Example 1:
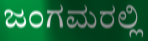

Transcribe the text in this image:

ಜಂಗಮರಲ್ಲಿ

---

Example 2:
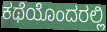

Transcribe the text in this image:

ಕಥೆಯೊಂದರಲ್ಲಿ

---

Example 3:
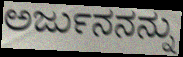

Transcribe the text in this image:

ಅರ್ಜುನನನ್ನು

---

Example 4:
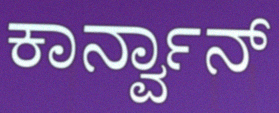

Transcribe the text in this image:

ಕಾರ್ನ್ವಾನ್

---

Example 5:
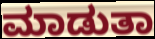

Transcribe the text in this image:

ಮಾಡುತಾ